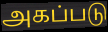
அகப்படு